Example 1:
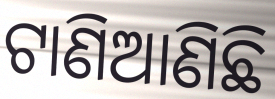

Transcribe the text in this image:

ଟାଣିଆଣିଛି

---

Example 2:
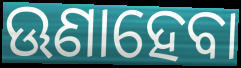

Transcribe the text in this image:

ଊଣାହେବା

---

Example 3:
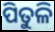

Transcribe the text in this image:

ପିତୁଳି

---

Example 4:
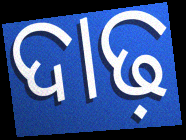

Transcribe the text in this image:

ଦାଢ଼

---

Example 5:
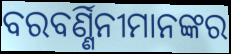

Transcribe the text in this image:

ବରବର୍ଣ୍ଣିନୀମାନଙ୍କର